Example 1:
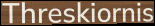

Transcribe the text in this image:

Threskiornis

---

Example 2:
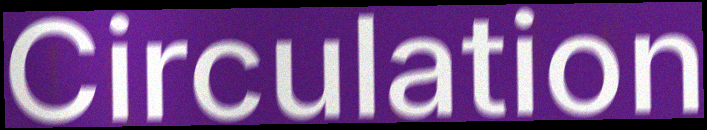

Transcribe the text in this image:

Circulation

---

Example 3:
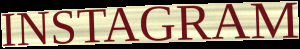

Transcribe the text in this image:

INSTAGRAM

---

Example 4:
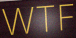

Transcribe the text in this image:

WTF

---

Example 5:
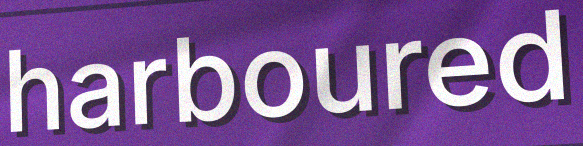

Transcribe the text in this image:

harboured